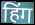
हिंग